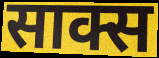
साक्स